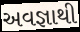
અવજ્ઞાથી